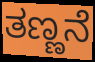
ತಣ್ಣನೆ